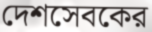
দেশসেবকের